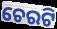
ଚେରଟି